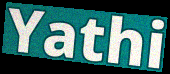
Yathi